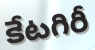
కేటగిరీ